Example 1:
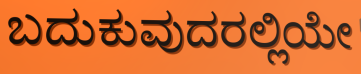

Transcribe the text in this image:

ಬದುಕುವುದರಲ್ಲಿಯೇ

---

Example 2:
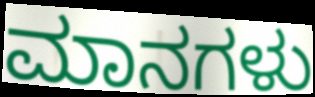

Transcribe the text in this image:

ಮಾನಗಳು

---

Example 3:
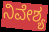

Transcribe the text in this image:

ನಿವೇಶ್ಯ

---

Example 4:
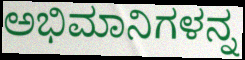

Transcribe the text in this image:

ಅಭಿಮಾನಿಗಳನ್ನ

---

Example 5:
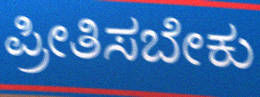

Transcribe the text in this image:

ಪ್ರೀತಿಸಬೇಕು